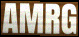
AMRG